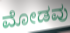
ಮೋಡವು